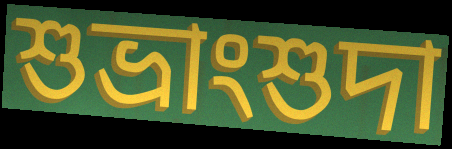
শুভ্রাংশুদা